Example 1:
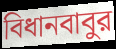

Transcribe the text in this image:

বিধানবাবুর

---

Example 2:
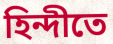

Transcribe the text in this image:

হিন্দীতে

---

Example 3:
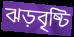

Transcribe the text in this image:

ঝড়বৃষ্টি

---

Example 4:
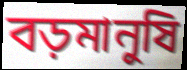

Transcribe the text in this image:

বড়মানুষি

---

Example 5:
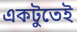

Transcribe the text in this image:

একটুতেই